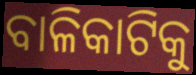
ବାଳିକାଟିକୁ